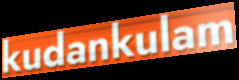
kudankulam